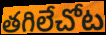
తగిలేచోట